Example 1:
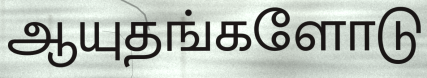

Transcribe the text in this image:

ஆயுதங்களோடு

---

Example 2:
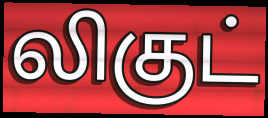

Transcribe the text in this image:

லிகுட்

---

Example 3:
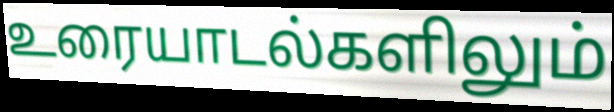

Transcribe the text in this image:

உரையாடல்களிலும்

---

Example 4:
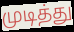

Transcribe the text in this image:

முடித்து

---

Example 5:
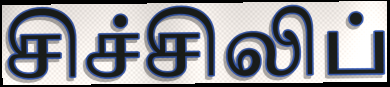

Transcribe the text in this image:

சிச்சிலிப்